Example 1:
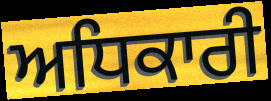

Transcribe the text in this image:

ਅਧਿਕਾਰੀ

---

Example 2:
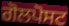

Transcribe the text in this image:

ਗੋਲਪੋਸਟ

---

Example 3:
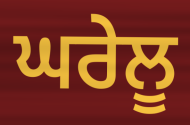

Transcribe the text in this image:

ਘਰੇਲੂ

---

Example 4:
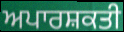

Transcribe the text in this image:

ਅਪਾਰਸ਼ਕਤੀ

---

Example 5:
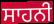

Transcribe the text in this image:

ਸਾਹਨੀ